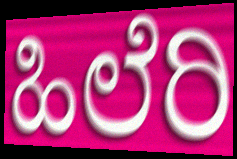
ಹಿಲೆರಿ